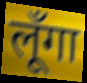
लूँगा